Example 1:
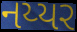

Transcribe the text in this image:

નય્યર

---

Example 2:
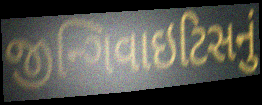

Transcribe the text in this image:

જીન્ગિવાઇટિસનું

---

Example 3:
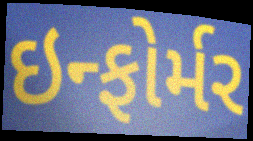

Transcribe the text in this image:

ઇન્ફોર્મર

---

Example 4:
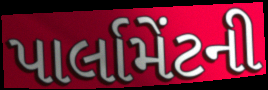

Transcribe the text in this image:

પાર્લામેંટની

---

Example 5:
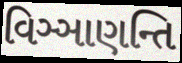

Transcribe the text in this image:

વિઞ્ઞાણન્તિ